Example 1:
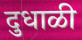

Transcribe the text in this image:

दुधाळी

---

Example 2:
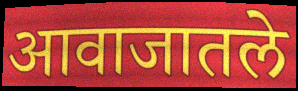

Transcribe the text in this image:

आवाजातले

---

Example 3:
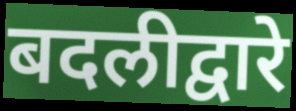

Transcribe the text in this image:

बदलीद्वारे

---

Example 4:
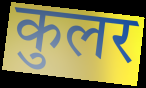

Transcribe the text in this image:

कुलर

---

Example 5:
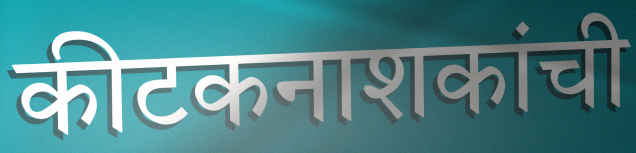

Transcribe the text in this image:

कीटकनाशकांची